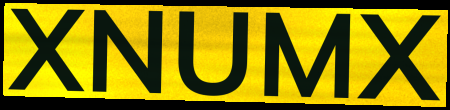
XNUMX